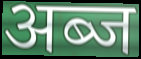
अब्ज